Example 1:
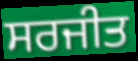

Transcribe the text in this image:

ਸਰਜੀਤ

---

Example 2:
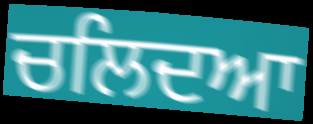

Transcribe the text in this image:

ਚਲਿਦਆ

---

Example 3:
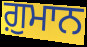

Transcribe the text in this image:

ਗ਼ੁਮਾਨ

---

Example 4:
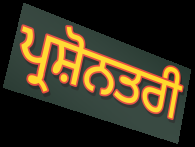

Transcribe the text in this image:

ਪ੍ਰਸ਼ੋਨਤਰੀ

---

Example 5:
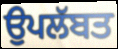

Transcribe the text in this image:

ਉਪਲੱਬਤ